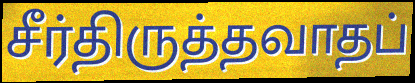
சீர்திருத்தவாதப்